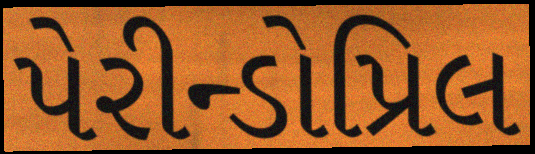
પેરીન્ડોપ્રિલ